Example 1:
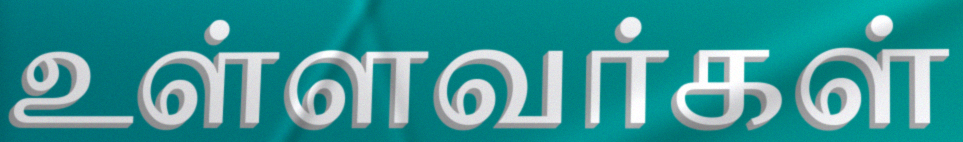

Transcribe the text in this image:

உள்ளவர்கள்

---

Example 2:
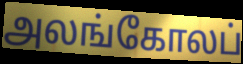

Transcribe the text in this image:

அலங்கோலப்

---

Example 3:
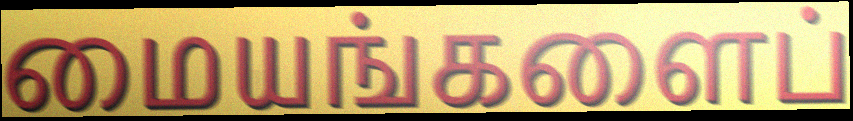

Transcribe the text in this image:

மையங்களைப்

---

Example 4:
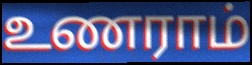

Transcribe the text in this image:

உணராம்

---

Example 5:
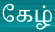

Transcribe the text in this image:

கேழ்